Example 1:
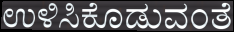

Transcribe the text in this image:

ಉಳಿಸಿಕೊಡುವಂತೆ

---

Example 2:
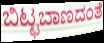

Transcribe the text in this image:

ಬಿಟ್ಟಬಾಣದಂತೆ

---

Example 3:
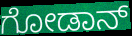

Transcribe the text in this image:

ಗೋಡಾನ್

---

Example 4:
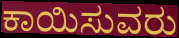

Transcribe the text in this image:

ಕಾಯಿಸುವರು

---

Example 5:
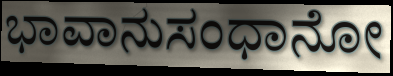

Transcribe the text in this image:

ಭಾವಾನುಸಂಧಾನೋ